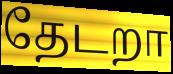
தேடறா